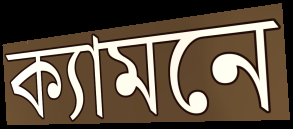
ক্যামনে